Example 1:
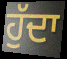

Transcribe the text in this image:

ਹੁੱਦਾ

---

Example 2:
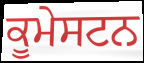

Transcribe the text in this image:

ਕੂਮੇਸਟਨ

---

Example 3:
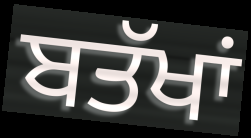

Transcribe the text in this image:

ਬਤੱਖਾਂ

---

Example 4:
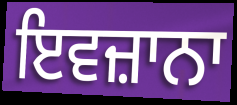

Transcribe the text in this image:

ਇਵਜ਼ਾਨਾ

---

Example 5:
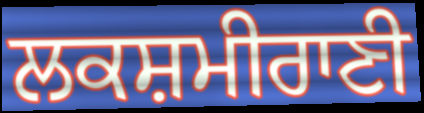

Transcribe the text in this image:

ਲਕਸ਼ਮੀਰਾਣੀ